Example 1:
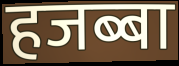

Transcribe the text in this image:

हजब्बा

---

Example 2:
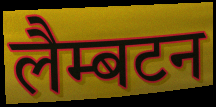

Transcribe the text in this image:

लैम्बटन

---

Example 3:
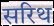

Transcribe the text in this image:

सरिथ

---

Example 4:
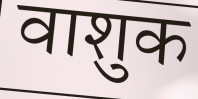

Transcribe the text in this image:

वाशुक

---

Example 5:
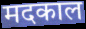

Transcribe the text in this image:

मदकाल